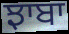
ਝਾਬਾ